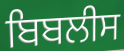
ਬਿਬਲੀਸ